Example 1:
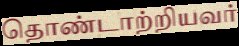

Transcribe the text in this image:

தொண்டாற்றியவர்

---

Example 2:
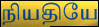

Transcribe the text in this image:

நியதியே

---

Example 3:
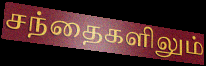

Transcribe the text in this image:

சந்தைகளிலும்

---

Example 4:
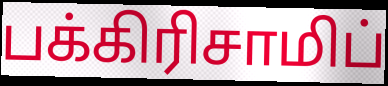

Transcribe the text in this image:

பக்கிரிசாமிப்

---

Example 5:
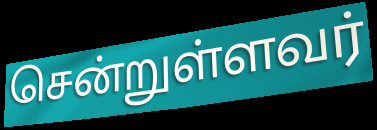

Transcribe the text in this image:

சென்றுள்ளவர்